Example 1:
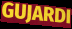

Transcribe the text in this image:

GUJARDI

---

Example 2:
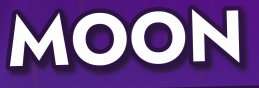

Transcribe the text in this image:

MOON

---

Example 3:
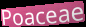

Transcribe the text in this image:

Poaceae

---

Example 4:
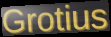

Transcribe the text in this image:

Grotius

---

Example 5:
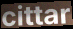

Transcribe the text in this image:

cittar